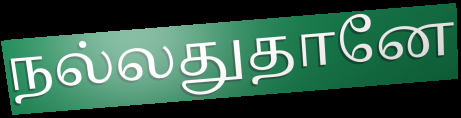
நல்லதுதானே